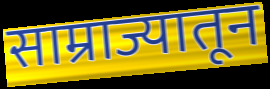
साम्राज्यातून